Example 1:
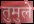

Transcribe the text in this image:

तुमुले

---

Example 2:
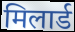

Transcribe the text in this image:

मिलार्ड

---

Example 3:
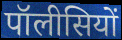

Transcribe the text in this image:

पॉलीसियों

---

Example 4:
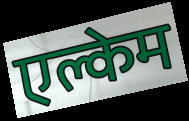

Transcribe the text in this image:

एल्केम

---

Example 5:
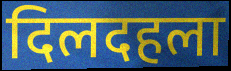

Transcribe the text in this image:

दिलदहला